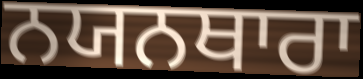
ਨਯਨਥਾਰਾ